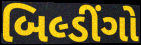
બિલ્ડીંગો